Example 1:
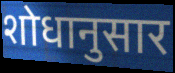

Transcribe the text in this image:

शोधानुसार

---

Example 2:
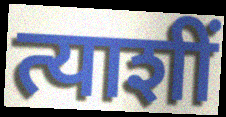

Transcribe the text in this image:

त्याशीं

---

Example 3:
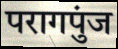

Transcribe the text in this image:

परागपुंज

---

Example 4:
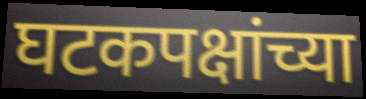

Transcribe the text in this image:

घटकपक्षांच्या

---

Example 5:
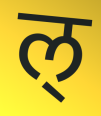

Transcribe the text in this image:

ल्